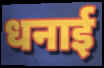
धनाई